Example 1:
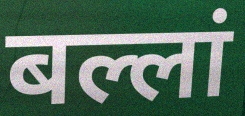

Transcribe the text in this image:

बल्लां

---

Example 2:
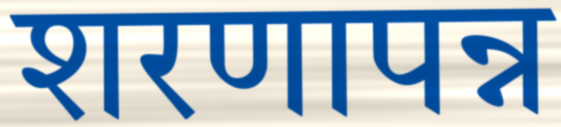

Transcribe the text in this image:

शरणापन्न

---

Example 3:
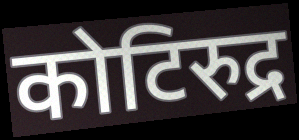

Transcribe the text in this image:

कोटिरुद्र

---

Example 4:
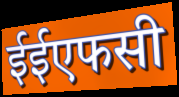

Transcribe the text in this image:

ईईएफसी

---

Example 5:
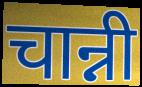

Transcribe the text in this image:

चान्नी